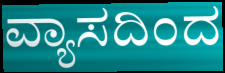
ವ್ಯಾಸದಿಂದ